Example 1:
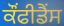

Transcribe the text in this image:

ਕੌਂਫੀਡੈਂਸ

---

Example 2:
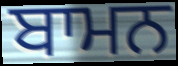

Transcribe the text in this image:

ਬਾਮਨ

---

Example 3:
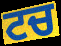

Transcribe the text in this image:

ਟਚ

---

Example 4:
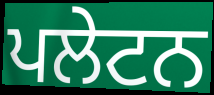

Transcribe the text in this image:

ਪਲੇਟਨ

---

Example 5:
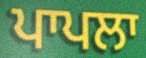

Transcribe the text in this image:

ਪਾਪਲਾ